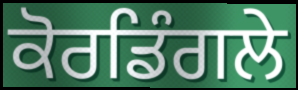
ਕੋਰਡਿੰਗਲੇ